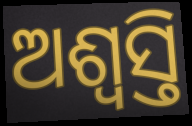
ଅଶ୍ୱସ୍ତି